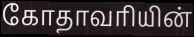
கோதாவரியின்